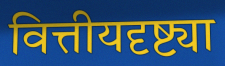
वित्तीयदृष्ट्या